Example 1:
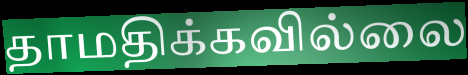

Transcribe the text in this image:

தாமதிக்கவில்லை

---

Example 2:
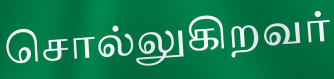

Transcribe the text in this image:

சொல்லுகிறவர்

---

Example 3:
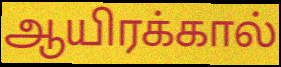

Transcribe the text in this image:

ஆயிரக்கால்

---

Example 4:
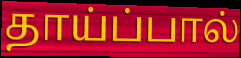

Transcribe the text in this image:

தாய்ப்பால்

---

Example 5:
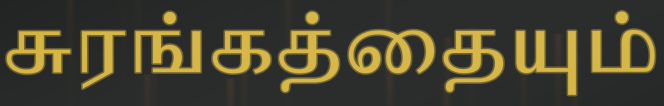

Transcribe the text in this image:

சுரங்கத்தையும்